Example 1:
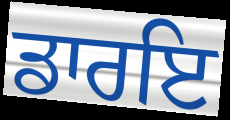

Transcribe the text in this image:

ਡਾਰਇ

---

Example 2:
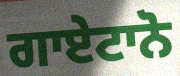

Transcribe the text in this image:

ਗਾਏਟਾਨੋ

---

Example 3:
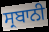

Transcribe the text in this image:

ਸ੍ਰਬਾਨੀ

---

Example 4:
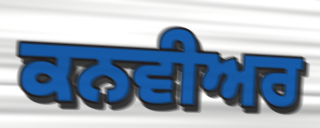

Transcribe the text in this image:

ਕਨਵੀਅਰ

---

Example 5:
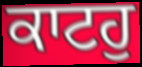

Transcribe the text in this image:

ਕਾਟਹੁ